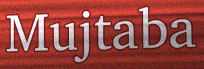
Mujtaba